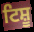
ਟਿਸ਼ੂ